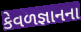
કેવળજ્ઞાનના